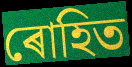
ৰোহিত